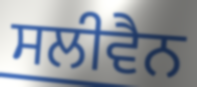
ਸਲੀਵੈਨ